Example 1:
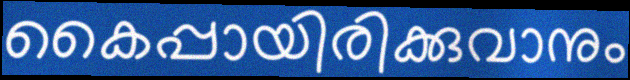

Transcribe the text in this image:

കൈപ്പായിരിക്കുവാനും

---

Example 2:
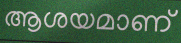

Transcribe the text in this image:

ആശയമാണ്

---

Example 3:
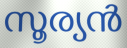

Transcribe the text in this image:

സൂര്യൻ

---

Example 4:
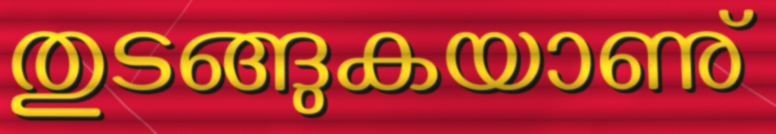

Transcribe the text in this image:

തുടങ്ങുകയാണു്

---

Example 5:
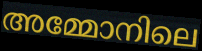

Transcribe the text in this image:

അമ്മോനിലെ